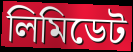
লিমিডেট